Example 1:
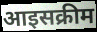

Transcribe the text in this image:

आइसक्रीम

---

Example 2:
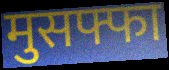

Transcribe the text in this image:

मुसफ्फा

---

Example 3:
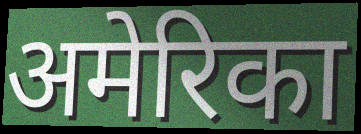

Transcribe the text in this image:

अमेरिका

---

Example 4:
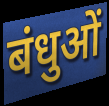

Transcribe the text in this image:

बंधुओं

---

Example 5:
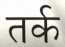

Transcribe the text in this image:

तर्क